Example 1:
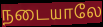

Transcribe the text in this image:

நடையாலே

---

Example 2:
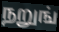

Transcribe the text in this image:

நறுங்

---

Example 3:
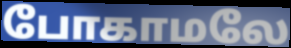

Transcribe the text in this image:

போகாமலே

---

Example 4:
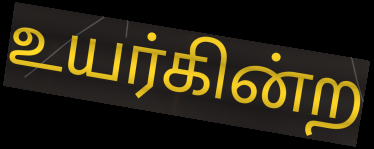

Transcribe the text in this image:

உயர்கின்ற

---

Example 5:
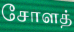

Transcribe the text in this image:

சோளத்